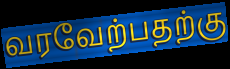
வரவேற்பதற்கு